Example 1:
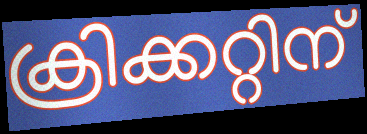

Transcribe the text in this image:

ക്രിക്കറ്റിന്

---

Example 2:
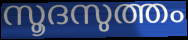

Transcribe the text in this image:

സൂദസുത്തം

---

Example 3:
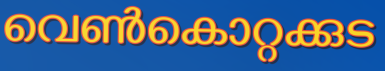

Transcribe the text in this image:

വെൺകൊറ്റക്കുട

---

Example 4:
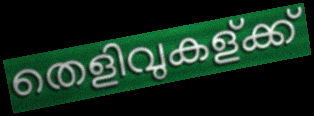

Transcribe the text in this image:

തെളിവുകള്ക്ക്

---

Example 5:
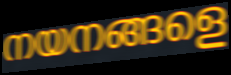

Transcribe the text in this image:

നയനങ്ങളെ